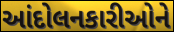
આંદોલનકારીઓને